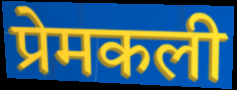
प्रेमकली